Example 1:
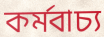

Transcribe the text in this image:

কৰ্মবাচ্য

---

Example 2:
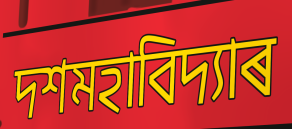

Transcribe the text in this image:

দশমহাবিদ্যাৰ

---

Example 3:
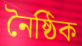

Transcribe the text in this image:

নৈষ্ঠিক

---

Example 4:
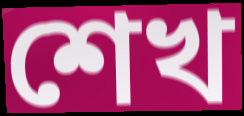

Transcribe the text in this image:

শেখ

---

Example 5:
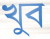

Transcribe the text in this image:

খুব